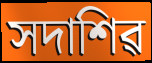
সদাশিৱ